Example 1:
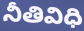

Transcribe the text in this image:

నీతివిధి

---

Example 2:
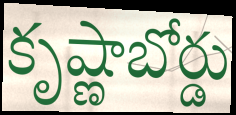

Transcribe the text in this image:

కృష్ణాబోర్డు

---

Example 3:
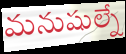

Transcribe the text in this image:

మనుషుల్నే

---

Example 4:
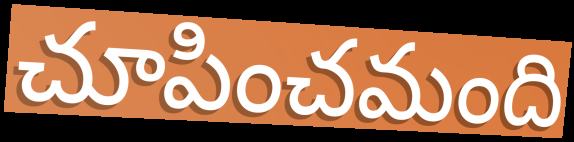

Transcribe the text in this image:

చూపించమంది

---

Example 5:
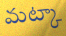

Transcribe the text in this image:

మట్కా